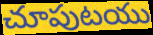
చూపుటయు